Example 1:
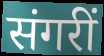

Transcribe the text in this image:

संगरीं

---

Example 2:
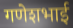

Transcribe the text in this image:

गणेशभाई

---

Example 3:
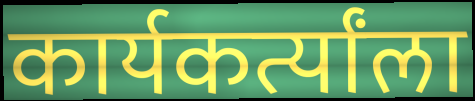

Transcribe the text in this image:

कार्यकर्त्यांला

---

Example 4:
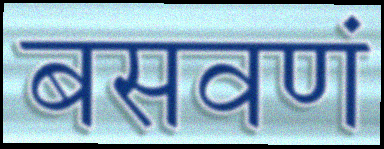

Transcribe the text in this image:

बसवणं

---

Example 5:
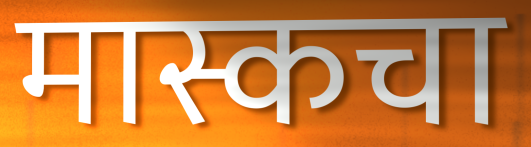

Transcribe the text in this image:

मास्कचा